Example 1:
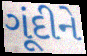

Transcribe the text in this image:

ગૂંદીને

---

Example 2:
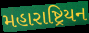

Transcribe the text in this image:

મહારાષ્ટ્રિયન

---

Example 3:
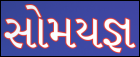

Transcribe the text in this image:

સોમયજ્ઞ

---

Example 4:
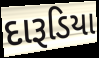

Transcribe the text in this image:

દારૂડિયા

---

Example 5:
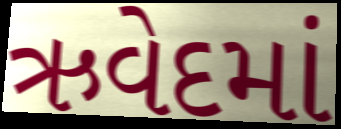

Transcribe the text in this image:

ઋવેદમાં